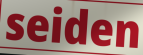
seiden